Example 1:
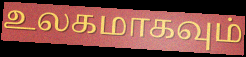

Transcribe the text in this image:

உலகமாகவும்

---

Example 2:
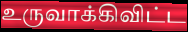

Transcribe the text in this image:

உருவாக்கிவிட்ட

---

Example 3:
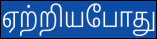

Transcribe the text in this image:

ஏற்றியபோது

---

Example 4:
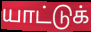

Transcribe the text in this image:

யாட்டுக்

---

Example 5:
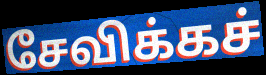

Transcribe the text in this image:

சேவிக்கச்